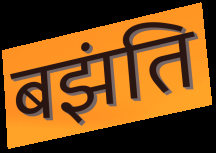
बझंति